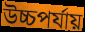
উচ্চপর্যায়